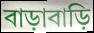
বাড়াবাড়ি